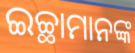
ଇଚ୍ଛାମାନଙ୍କ